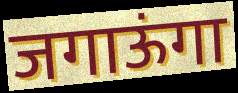
जगाऊंगा